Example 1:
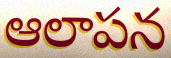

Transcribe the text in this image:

ఆలాపన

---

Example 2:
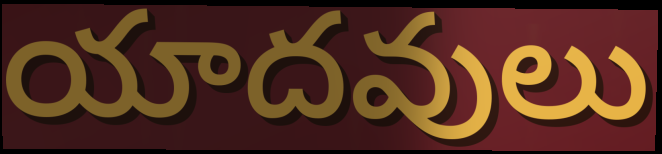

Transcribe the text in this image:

యాదవులు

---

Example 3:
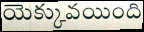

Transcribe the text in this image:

యెక్కువయింది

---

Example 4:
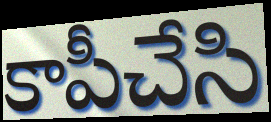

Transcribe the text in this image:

కాపీచేసి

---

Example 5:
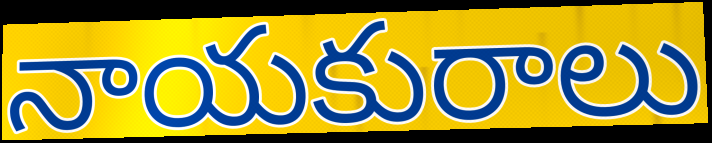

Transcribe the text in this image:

నాయకురాలు